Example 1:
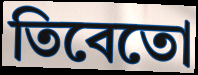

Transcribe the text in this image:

তিবেতো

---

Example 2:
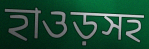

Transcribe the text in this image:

হাওড়সহ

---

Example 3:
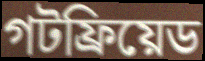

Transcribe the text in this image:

গটফ্রিয়েড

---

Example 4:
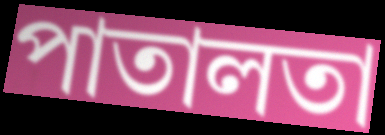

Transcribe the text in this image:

পাতালতা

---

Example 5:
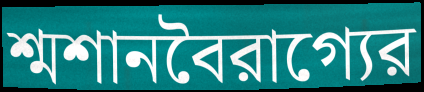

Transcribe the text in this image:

শ্মশানবৈরাগ্যের